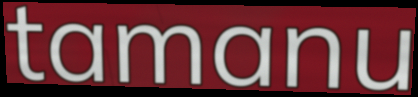
tamanu